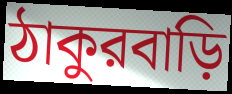
ঠাকুরবাড়ি